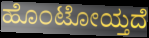
ಹೊಂಟೋಯ್ತದೆ